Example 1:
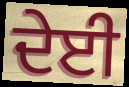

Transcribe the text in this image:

ਦੇਈ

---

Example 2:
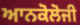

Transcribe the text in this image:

ਆਨਕੋਲੋਜੀ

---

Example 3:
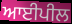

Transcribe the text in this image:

ਆਈਪੀਲ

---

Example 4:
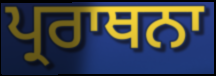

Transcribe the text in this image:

ਪ੍ਰਰਾਥਨਾ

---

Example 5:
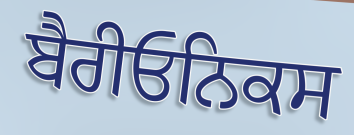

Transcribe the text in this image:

ਬੈਰੀਓਨਿਕਸ